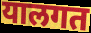
यालगत